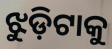
ଝୁଡ଼ିଟାକୁ